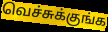
வெச்சுக்குங்க